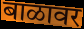
बाळावर